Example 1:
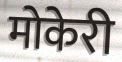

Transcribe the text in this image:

मोकेरी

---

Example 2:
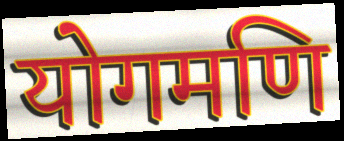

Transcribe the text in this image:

योगमणि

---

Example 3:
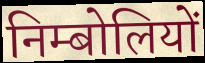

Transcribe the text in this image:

निम्बोलियों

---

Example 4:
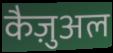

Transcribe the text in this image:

कैज़ुअल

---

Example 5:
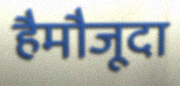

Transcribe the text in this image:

हैमौजूदा